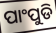
ପାଂପୁଡି